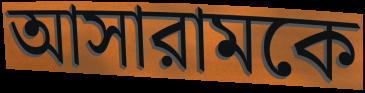
আসারামকে